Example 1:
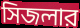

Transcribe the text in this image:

সিজলার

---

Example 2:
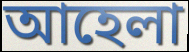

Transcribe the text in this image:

আহেলা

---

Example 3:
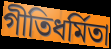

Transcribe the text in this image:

গীতিধর্মিতা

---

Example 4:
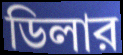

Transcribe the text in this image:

ডিলার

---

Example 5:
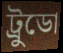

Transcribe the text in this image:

ট্রুডো